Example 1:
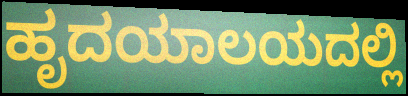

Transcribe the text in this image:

ಹೃದಯಾಲಯದಲ್ಲಿ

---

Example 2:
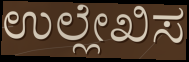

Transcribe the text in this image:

ಉಲ್ಲೇಖಿಸ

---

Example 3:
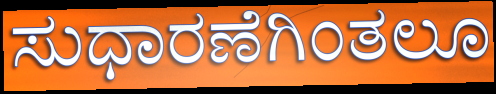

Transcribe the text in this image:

ಸುಧಾರಣೆಗಿಂತಲೂ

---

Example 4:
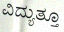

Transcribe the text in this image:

ವಿದ್ಯುತ್ತೂ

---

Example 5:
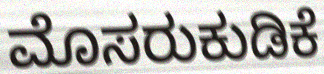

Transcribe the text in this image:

ಮೊಸರುಕುಡಿಕೆ